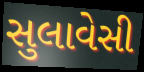
સુલાવેસી